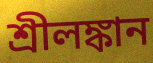
শ্রীলঙ্কান